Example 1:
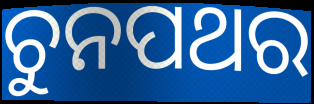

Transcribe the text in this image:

ଚୁନପଥର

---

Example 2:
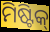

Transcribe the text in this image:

ମିଷ୍ଟିକ୍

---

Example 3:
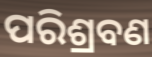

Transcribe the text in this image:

ପରିଶ୍ରବଣ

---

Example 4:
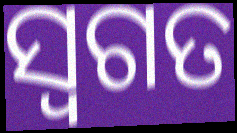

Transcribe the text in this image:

ସ୍ଵଗତ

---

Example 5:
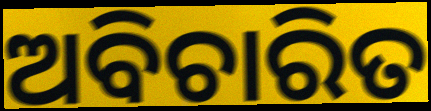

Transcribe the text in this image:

ଅବିଚାରିତ